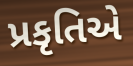
પ્રકૃતિએ